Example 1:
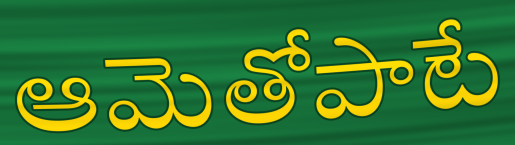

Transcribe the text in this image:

ఆమెతోపాటే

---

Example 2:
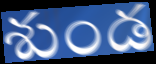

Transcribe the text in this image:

శుండ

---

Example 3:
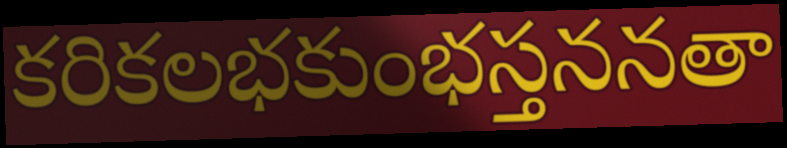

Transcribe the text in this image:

కరికలభకుంభస్తననతా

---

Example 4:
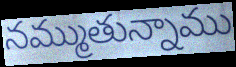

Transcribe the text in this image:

నమ్ముతున్నాము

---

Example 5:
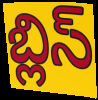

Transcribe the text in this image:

బ్లిస్